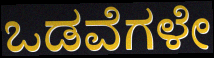
ಒಡವೆಗಳೇ